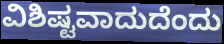
ವಿಶಿಷ್ಟವಾದುದೆಂದು